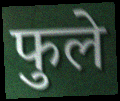
फुले